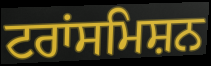
ਟਰਾਂਸਮਿਸ਼ਨ